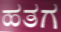
ಹತಗ